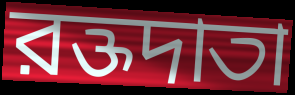
রক্তদাতা